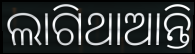
ଲାଗିଥାଆନ୍ତି